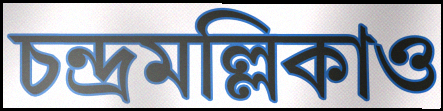
চন্দ্রমল্লিকাও